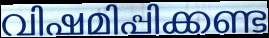
വിഷമിപ്പിക്കണ്ട